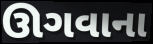
ઊગવાના